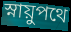
স্নায়ুপথে